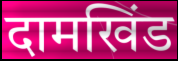
दामखिंड